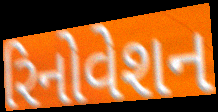
રિનોવેશન